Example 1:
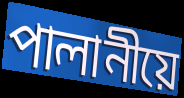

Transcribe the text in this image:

পালানীয়ে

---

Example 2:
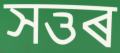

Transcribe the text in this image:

সত্তৰ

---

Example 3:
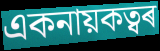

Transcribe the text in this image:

একনায়কত্বৰ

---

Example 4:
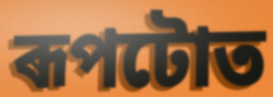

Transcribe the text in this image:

ৰূপটোত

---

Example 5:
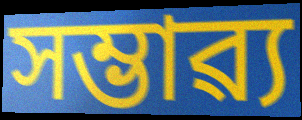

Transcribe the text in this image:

সম্ভাৱ্য